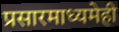
प्रसारमाध्यमेही